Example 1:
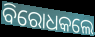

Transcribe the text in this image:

ବିରୋଧକଲେ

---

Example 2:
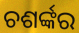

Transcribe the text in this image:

ଚଶର୍ଙ୍କର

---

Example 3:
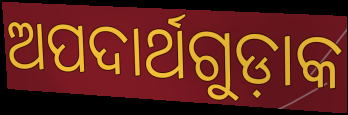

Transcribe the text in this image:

ଅପଦାର୍ଥଗୁଡ଼ାକ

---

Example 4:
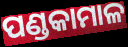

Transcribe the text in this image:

ପଣ୍ଡକାମାଳ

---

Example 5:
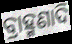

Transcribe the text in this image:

ବ୍ରାହ୍ମଣାଦି